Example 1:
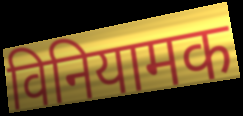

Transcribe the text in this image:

विनियामक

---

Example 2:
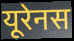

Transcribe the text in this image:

यूरेनस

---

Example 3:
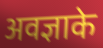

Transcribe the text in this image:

अवज्ञाके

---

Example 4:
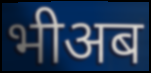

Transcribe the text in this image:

भीअब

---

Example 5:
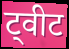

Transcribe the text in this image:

ट्वीट